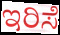
ಇರಿಸೆ